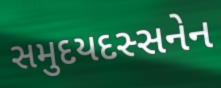
સમુદયદસ્સનેન